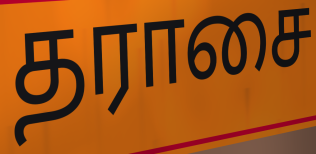
தராசை